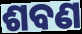
ଶବଣ